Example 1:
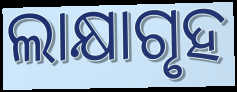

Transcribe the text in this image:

ଲାକ୍ଷାଗୃହ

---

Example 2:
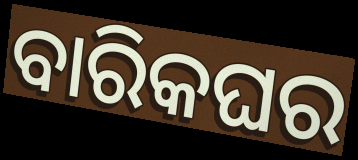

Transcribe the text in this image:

ବାରିକଘର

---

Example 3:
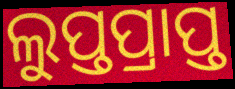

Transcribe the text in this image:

ଲୁପ୍ତପ୍ରାପ୍ତ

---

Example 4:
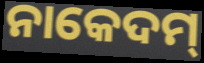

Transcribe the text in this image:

ନାକେଦମ୍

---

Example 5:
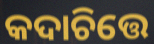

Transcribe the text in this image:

କଦାଚିତ୍ତେ